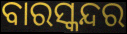
ବାରସ୍କନ୍ଦର